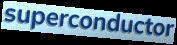
superconductor